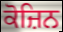
ਕੋਜ਼ਿਨ